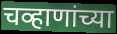
चव्हाणांच्या